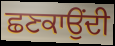
ਛਣਕਾਉਂਦੀ